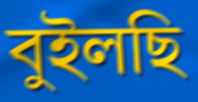
বুইলছি